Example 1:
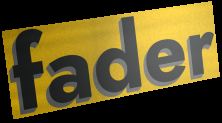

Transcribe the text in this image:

fader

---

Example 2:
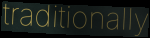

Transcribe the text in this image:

traditionally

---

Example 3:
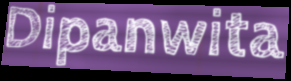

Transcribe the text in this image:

Dipanwita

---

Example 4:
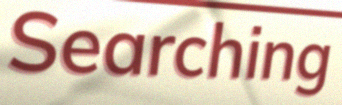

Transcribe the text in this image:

Searching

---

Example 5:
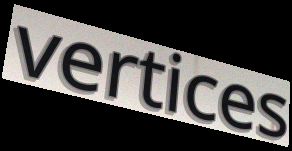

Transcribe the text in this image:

vertices